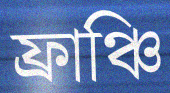
ফ্রাঞ্চি